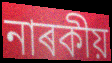
নাৰকীয়